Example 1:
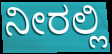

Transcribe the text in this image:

ನೀರಲ್ಲಿ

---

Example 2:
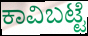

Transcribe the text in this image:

ಕಾವಿಬಟ್ಟೆ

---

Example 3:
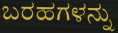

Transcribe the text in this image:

ಬರಹಗಳನ್ನು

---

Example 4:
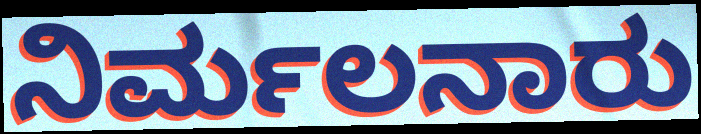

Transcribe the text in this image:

ನಿರ್ಮಲನಾರು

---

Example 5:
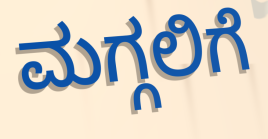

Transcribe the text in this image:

ಮಗ್ಗಲಿಗೆ